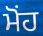
ਮੋਂਹ